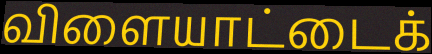
விளையாட்டைக்